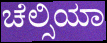
ಚೆಲ್ಸಿಯಾ